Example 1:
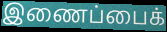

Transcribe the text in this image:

இணைப்பைக்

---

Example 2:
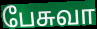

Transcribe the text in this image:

பேசுவா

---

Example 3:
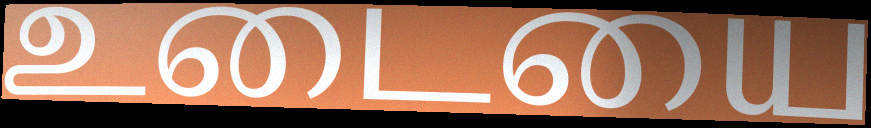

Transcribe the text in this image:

உடையை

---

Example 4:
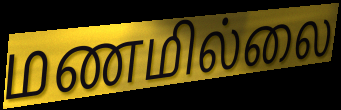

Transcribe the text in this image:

மணமில்லை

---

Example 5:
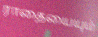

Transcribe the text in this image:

ராதையையும்